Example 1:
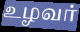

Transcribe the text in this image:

உழவர்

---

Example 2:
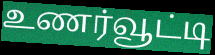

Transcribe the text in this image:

உணர்வூட்டி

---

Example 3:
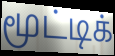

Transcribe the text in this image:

மூட்டிக்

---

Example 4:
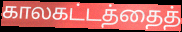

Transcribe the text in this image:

காலகட்டத்தைத்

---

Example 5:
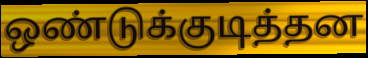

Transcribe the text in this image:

ஒண்டுக்குடித்தன